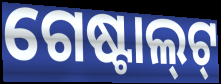
ଗେଷ୍ଟାଲ୍‌ଟ୍